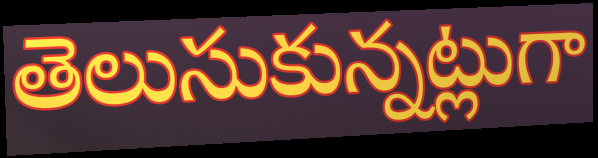
తెలుసుకున్నట్లుగా